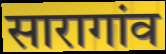
सारागांव